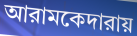
আরামকেদারায়